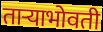
ताऱ्याभोवती